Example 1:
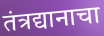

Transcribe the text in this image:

तंत्रद्यानाचा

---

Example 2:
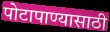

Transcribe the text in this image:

पोटापाण्यासाठी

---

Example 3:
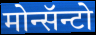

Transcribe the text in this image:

मोन्सॅन्टो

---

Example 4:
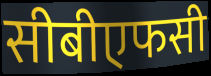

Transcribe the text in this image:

सीबीएफसी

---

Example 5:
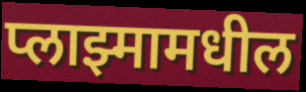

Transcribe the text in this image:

प्लाझ्मामधील